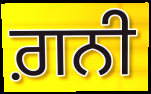
ਗ਼ਨੀ